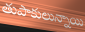
తుపాకులున్నాయి